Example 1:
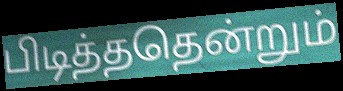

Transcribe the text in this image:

பிடித்ததென்றும்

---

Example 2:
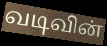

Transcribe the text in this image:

வடிவின்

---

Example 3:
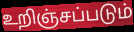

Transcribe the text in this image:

உறிஞ்சப்படும்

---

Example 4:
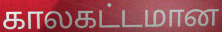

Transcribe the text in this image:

காலகட்டமான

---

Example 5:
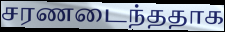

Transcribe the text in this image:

சரணடைந்ததாக